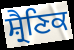
ਸ਼੍ਰੈਣਿਕ